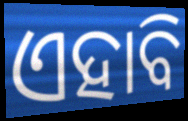
ଏହାବି